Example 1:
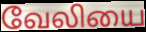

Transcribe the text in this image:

வேலியை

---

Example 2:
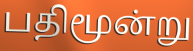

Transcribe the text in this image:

பதிமூன்று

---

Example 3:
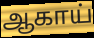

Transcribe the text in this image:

ஆகாய்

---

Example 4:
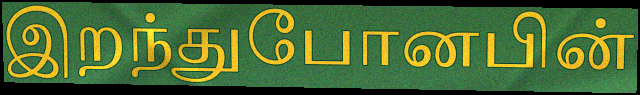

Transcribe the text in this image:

இறந்துபோனபின்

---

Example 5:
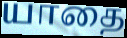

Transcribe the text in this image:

யாதை